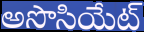
అసొసియేట్